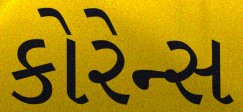
કોરેન્સ